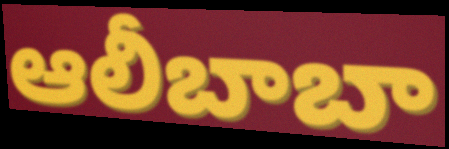
ఆలీబాబా